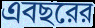
এবছরের